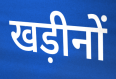
खड़ीनों